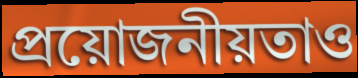
প্ৰয়োজনীয়তাও